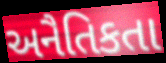
અનૈતિકતા